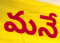
మనే